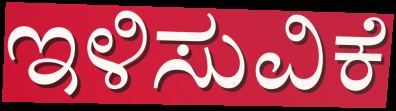
ಇಳಿಸುವಿಕೆ